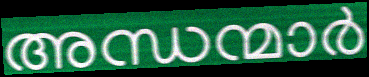
അന്ധന്മാർ